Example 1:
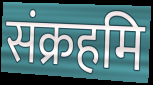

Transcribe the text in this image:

संक्रहमि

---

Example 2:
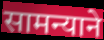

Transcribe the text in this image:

सामन्याने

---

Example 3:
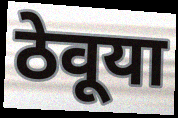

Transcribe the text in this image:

ठेवूया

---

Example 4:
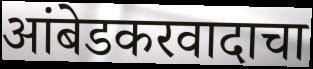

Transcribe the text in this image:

आंबेडकरवादाचा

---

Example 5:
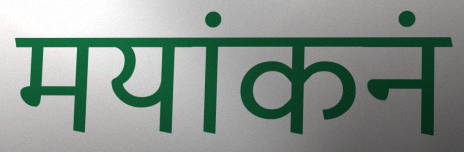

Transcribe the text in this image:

मयांकनं